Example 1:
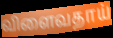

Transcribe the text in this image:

விளைவதாய்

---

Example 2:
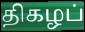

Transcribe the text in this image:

திகழப்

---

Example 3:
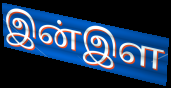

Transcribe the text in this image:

இன்இள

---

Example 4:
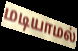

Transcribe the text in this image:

மடியாமல்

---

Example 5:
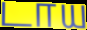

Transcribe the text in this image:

டாய